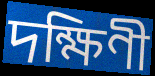
দক্ষিণী